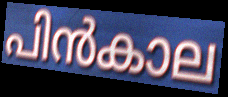
പിൻകാല